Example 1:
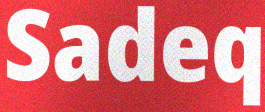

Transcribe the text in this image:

Sadeq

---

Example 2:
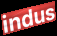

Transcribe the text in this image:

indus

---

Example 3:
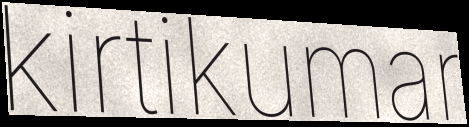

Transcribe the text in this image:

kirtikumar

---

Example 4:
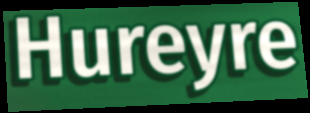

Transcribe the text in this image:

Hureyre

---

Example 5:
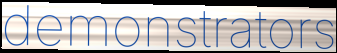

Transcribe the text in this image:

demonstrators